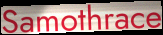
Samothrace